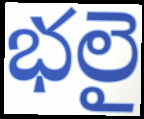
భలై